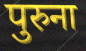
पुरुना